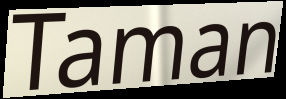
Taman